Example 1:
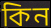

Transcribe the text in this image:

কিন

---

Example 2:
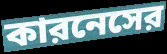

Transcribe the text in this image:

কারনেসের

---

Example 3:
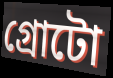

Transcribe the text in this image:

গ্রোটো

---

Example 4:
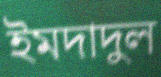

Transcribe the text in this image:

ইমদাদুল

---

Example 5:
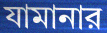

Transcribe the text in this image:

যামানার